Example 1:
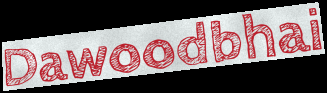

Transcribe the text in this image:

Dawoodbhai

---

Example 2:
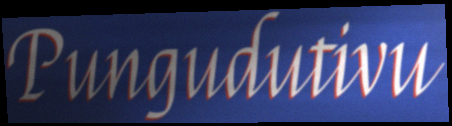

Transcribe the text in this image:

Pungudutivu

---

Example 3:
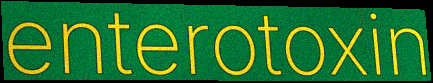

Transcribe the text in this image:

enterotoxin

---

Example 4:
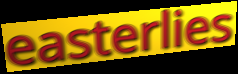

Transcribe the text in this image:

easterlies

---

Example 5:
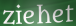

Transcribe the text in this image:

ziehet